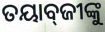
ତୟାବ୍‌ଜୀଙ୍କୁ